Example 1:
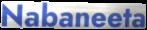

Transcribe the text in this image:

Nabaneeta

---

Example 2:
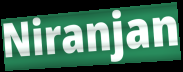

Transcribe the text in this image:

Niranjan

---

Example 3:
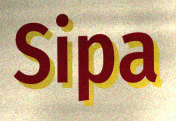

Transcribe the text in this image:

Sipa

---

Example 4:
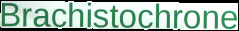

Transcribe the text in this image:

Brachistochrone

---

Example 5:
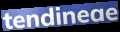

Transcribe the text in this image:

tendineae